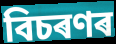
বিচৰণৰ